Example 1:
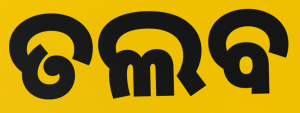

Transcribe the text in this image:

ତଲବ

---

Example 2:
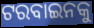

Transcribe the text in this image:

ଟରବାଇନକୁ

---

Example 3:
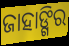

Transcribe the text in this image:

ଜାହାଙ୍ଗିର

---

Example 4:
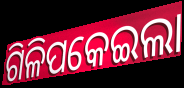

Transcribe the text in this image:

ଗିଳିପକେଇଲା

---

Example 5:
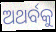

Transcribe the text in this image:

ଅଥର୍ବକୁ